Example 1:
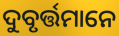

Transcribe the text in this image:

ଦୁବୃର୍ତ୍ତମାନେ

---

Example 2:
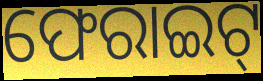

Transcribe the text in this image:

ଫେରାଇଟ୍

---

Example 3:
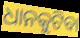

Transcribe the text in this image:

ଧାନକୁଟିବା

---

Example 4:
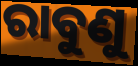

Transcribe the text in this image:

ରାବୁଣୁ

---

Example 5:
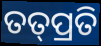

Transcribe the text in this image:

ତତ୍‌ପ୍ରତି